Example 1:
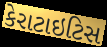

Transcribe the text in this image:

કેરાટાઇટિસ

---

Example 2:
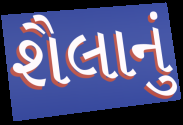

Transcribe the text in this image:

શૈલાનું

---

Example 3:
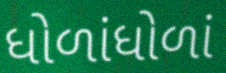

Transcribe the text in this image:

ધોળાંધોળાં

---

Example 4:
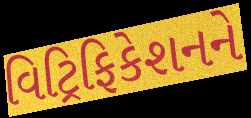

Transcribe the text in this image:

વિટ્રિફિકેશનને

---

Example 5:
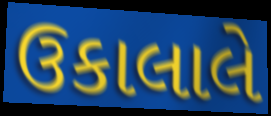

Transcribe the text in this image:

ઉકાલાલે